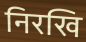
निरखि